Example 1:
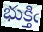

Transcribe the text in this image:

భుక్తిఁ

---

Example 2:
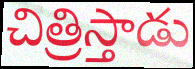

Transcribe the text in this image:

చిత్రిస్తాడు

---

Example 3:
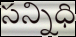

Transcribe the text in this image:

సన్నిధి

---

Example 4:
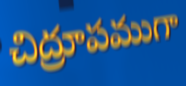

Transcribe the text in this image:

చిద్రూపముగా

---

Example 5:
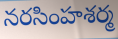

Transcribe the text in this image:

నరసింహశర్మ